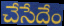
చేసేదేం